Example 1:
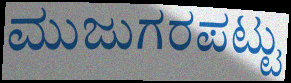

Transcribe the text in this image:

ಮುಜುಗರಪಟ್ಟು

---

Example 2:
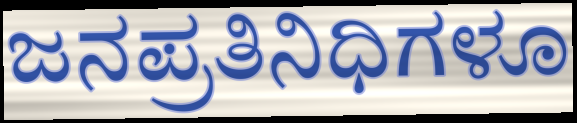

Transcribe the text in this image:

ಜನಪ್ರತಿನಿಧಿಗಳೂ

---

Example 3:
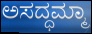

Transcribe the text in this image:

ಅಸದ್ಧಮ್ಮಾ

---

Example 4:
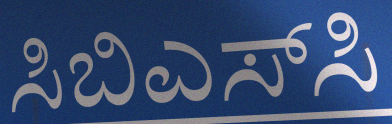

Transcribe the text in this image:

ಸಿಬಿಎಸ್‌ಸಿ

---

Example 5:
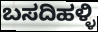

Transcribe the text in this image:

ಬಸದಿಹಳ್ಳಿ